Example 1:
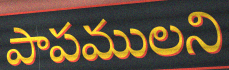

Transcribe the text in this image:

పాపములని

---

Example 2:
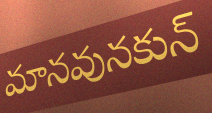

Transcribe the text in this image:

మానవునకున్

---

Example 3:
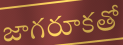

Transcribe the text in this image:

జాగరూకతో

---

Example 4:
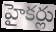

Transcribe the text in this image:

హైకర్లు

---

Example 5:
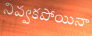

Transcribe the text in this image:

నివ్వకపోయినా